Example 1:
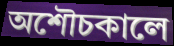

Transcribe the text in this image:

অশৌচকালে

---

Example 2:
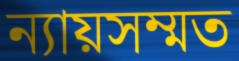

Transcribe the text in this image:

ন্যায়সম্মত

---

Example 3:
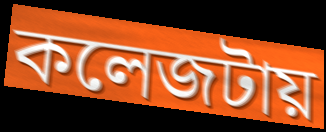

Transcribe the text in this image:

কলেজটায়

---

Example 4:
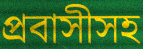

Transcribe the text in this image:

প্রবাসীসহ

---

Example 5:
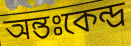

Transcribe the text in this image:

অন্তঃকেন্দ্র